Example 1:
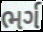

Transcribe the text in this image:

ભર્ગ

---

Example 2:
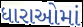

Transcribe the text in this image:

ધારાઓમાં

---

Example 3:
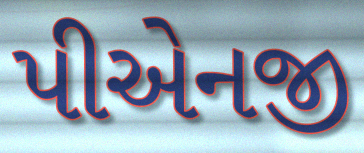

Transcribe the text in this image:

પીએનજી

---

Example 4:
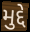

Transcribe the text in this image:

મુદ્દે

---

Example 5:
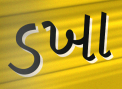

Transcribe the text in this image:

ડખા